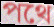
পথে